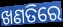
ଖଣତିରେ